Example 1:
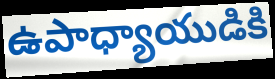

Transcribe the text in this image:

ఉపాధ్యాయుడికి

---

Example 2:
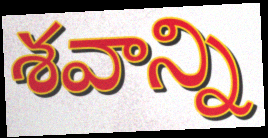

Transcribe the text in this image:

శవాన్ని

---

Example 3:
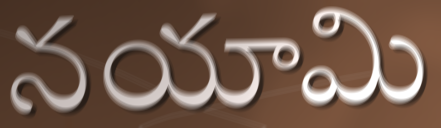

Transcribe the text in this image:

నయామి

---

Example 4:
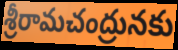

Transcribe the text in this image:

శ్రీరామచంద్రునకు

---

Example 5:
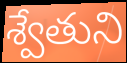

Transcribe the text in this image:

శ్వేతుని